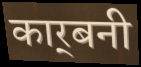
कार्बनी